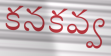
కనకవ్వ